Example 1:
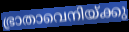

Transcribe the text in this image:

ഭ്രാതാവെനിയ്ക്കു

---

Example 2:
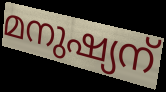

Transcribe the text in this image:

മനുഷ്യന്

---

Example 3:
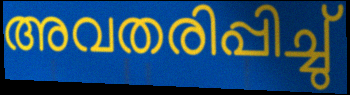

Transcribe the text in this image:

അവതരിപ്പിച്ചു്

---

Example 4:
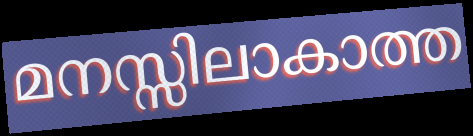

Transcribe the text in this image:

മനസ്സിലാകാത്ത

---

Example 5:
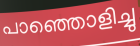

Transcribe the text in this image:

പാഞ്ഞൊളിച്ചു